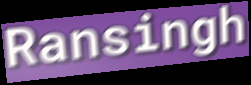
Ransingh